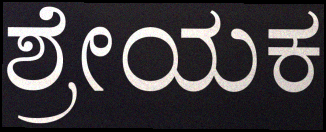
ಶ್ರೇಯಕ